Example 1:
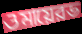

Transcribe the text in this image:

ওমায়েরভ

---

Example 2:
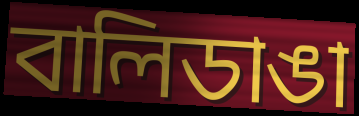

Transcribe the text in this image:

বালিডাঙা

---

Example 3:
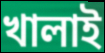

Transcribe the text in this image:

খালাই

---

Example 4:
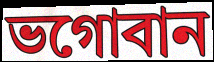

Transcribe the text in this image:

ভগোবান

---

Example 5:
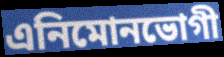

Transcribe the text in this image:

এনিমোনভোগী